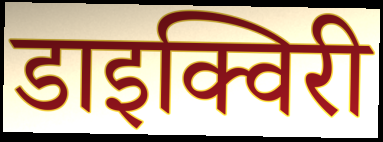
डाइक्विरी